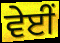
ਵੇਈਂ